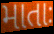
માતાઃ